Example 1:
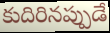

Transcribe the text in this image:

కుదిరినప్పుడే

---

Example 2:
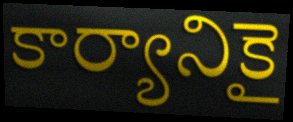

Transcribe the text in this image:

కార్యానికై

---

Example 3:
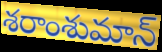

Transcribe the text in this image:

శరాంశుమాన్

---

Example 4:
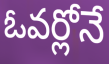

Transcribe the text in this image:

ఓవర్లోనే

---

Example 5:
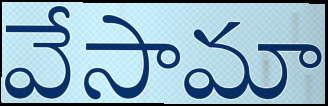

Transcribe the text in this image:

వేసామా